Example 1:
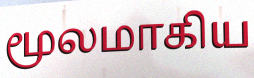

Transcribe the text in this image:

மூலமாகிய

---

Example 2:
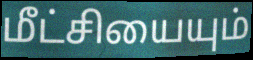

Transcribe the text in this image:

மீட்சியையும்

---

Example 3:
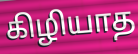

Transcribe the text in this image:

கிழியாத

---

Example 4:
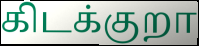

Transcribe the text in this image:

கிடக்குறா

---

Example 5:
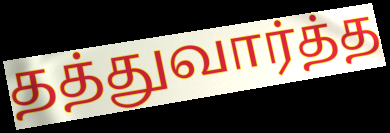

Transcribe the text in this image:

தத்துவார்த்த